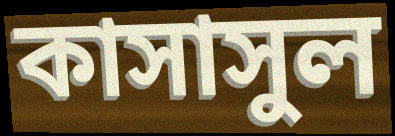
কাসাসুল